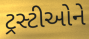
ટ્રસ્ટીઓને